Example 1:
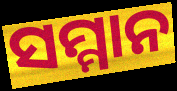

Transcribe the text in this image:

ସମ୍ମାନ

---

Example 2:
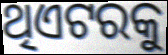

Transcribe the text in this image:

ଥିଏଟରକୁ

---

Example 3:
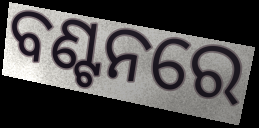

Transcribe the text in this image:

ବଣ୍ଟନରେ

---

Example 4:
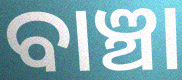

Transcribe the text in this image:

ବାଞ୍ଚା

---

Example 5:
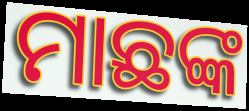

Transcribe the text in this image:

ମାଛଙ୍କ